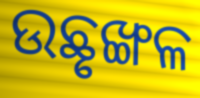
ଉଛୃଙ୍ଖଳ